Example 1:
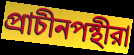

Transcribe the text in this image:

প্রাচীনপন্থীরা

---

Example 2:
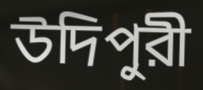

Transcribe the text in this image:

উদিপুরী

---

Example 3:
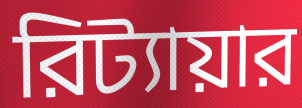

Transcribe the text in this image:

রিট্যায়ার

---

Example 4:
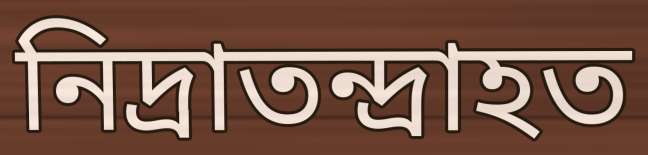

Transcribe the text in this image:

নিদ্রাতন্দ্রাহত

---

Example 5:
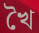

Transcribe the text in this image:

খৈ